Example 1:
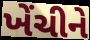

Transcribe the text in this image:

ખેંચીને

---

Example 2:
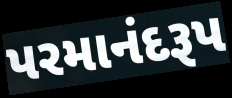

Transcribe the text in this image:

પરમાનંદરૂપ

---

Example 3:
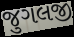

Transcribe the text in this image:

જુગલજી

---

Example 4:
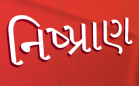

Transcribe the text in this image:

નિષ્પ્રાણ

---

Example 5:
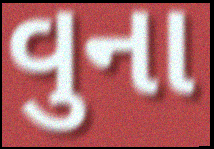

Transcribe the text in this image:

વુના